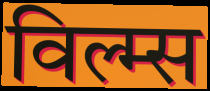
विल्म्स